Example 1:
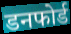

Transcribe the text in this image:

डनफोर्ड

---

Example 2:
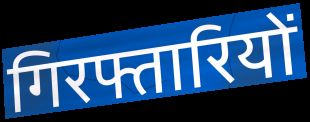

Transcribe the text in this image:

गिरफ्तारियों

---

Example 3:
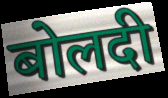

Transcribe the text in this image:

बोलदी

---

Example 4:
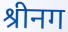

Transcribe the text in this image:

श्रीनग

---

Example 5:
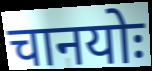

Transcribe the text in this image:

चानयोः